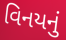
વિનયનું